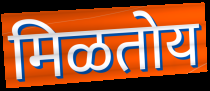
मिळतोय